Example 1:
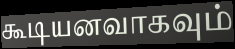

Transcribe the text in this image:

கூடியனவாகவும்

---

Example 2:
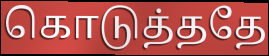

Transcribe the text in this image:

கொடுத்ததே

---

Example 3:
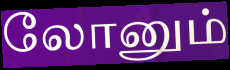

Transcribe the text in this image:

லோனும்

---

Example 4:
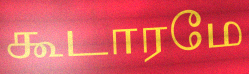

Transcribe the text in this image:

கூடாரமே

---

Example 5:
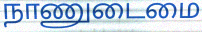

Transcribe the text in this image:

நாணுடைமை